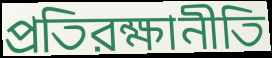
প্রতিরক্ষানীতি